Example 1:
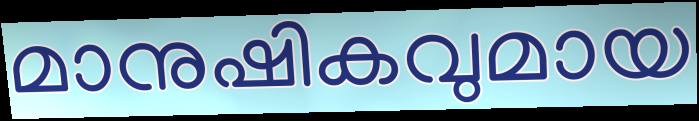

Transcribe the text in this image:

മാനുഷികവുമായ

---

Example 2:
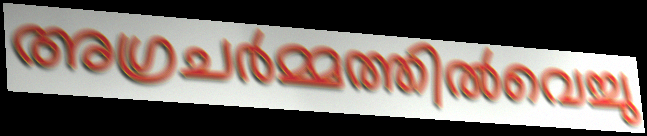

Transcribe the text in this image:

അഗ്രചർമ്മത്തിൽവെച്ചു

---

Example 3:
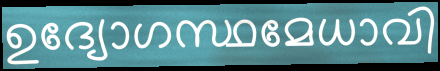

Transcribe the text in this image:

ഉദ്യോഗസ്ഥമേധാവി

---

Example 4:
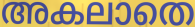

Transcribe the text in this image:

അകലാതെ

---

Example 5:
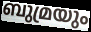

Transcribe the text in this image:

ബുമ്രയും